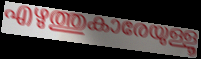
എഴുത്തുകാരേയുള്ളൂ